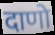
दाणो